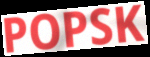
POPSK